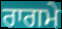
ਰਾਗਮੇ